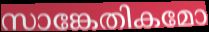
സാങ്കേതികമോ